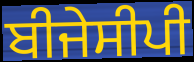
ਬੀਜੇਸੀਪੀ